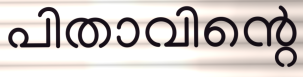
പിതാവിന്റെ